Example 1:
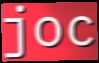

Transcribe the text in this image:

joc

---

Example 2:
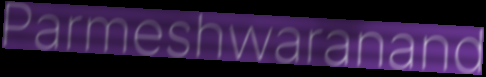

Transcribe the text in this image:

Parmeshwaranand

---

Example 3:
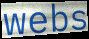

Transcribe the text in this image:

webs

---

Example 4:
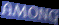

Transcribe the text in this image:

AMONG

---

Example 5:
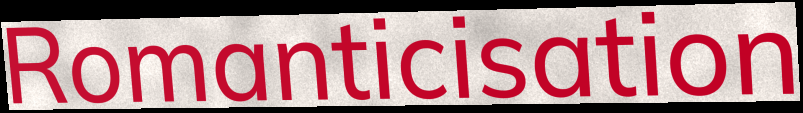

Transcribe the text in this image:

Romanticisation